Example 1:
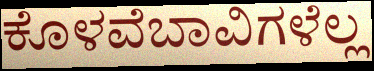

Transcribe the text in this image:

ಕೊಳವೆಬಾವಿಗಳೆಲ್ಲ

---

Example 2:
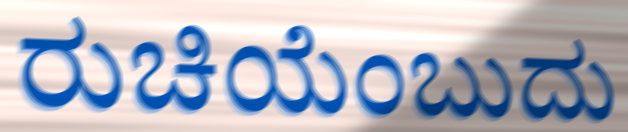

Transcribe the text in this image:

ರುಚಿಯೆಂಬುದು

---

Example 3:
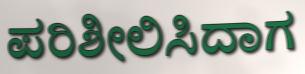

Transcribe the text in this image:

ಪರಿಶೀಲಿಸಿದಾಗ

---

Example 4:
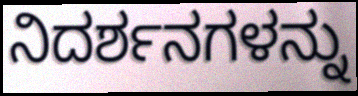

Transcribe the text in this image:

ನಿದರ್ಶನಗಳನ್ನು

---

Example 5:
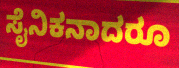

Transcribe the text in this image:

ಸೈನಿಕನಾದರೂ